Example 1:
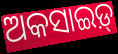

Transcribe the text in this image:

ଅକସାଇଡ଼୍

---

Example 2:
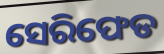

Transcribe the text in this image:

ସେରିଫେଡ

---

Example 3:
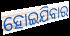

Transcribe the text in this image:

ହୋଇଯିବାର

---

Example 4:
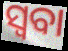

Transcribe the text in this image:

ସ୍ୱବା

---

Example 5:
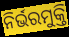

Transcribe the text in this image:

ନିର୍ଭରମୁକ୍ତି